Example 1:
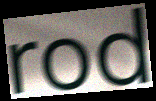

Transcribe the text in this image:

rod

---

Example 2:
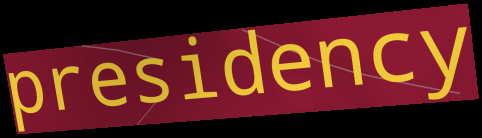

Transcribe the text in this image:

presidency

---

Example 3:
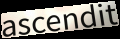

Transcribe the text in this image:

ascendit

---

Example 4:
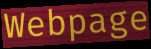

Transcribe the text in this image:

Webpage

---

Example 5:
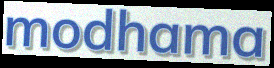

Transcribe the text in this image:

modhama